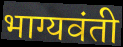
भाग्यवंती